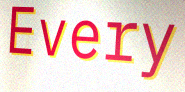
Every